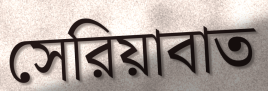
সেরিয়াবাত